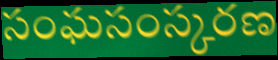
సంఘసంస్కరణ